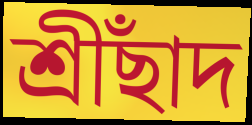
শ্রীছাঁদ